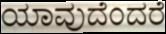
ಯಾವುದೆಂದರೆ